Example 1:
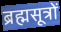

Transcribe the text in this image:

ब्रह्मसूत्रों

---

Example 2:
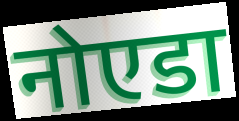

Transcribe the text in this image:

नोएडा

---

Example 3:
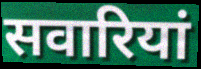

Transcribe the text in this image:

सवारियां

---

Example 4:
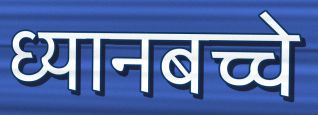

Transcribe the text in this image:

ध्यानबच्चे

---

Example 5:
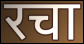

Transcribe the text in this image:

रचा